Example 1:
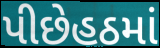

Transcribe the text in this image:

પીછેહઠમાં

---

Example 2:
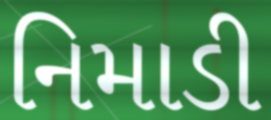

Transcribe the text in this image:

નિમાડી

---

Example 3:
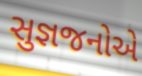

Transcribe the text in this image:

સુજ્ઞજનોએ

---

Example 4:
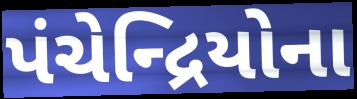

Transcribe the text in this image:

પંચેન્દ્રિયોના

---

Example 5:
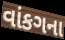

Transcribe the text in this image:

વાંકગના